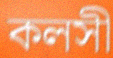
কলসী